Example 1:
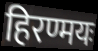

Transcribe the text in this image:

हिरण्मयः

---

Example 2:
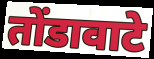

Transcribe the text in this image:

तोंडावाटे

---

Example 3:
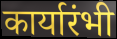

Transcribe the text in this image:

कार्यारंभी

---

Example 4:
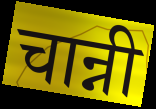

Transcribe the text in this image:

चान्नी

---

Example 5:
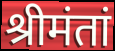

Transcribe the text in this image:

श्रीमंतां